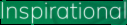
Inspirational